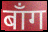
बाँग